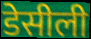
डेसीली